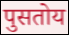
पुसतोय